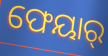
ଫେୟାର୍